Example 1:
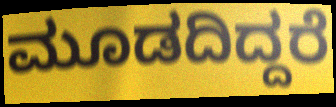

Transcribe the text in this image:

ಮೂಡದಿದ್ದರೆ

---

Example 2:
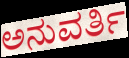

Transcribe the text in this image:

ಅನುವರ್ತಿ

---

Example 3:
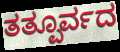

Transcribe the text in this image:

ತತ್ಪೂರ್ವದ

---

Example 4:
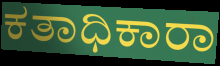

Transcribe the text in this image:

ಕತಾಧಿಕಾರಾ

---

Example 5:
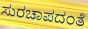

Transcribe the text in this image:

ಸುರಚಾಪದಂತೆ